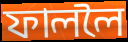
ফাললৈ